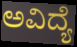
ಅವಿದ್ಯೆ